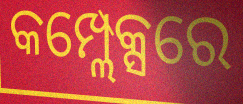
କମ୍ପ୍ଲେକ୍ସରେ